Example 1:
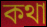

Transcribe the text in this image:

কথা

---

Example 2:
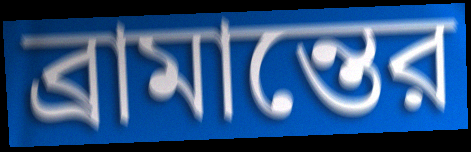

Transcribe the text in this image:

ব্রামান্তের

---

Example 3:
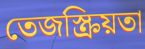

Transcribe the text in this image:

তেজস্ক্রিয়তা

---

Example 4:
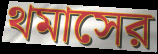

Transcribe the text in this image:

থমাসের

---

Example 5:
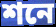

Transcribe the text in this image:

শনে